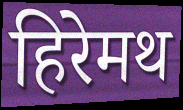
हिरेमथ